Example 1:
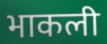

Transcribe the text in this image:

भाकली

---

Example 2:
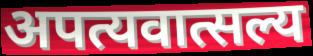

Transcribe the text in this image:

अपत्यवात्सल्य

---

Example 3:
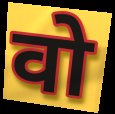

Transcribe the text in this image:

वो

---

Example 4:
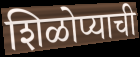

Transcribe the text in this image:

शिळोप्याची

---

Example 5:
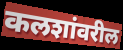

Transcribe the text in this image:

कलशांवरील